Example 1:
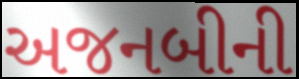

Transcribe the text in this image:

અજનબીની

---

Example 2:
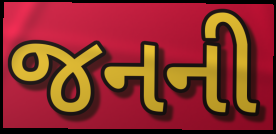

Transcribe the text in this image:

જનની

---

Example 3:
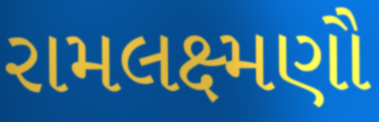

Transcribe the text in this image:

રામલક્ષ્મણૌ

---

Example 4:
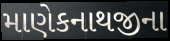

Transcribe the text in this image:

માણેકનાથજીના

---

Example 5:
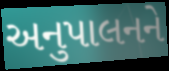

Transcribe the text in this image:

અનુપાલનને